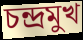
চন্দ্রমুখ